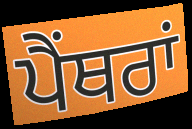
ਪੈਂਥਰਾਂ